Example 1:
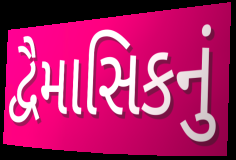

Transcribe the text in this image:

દ્વૈમાસિકનું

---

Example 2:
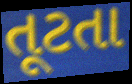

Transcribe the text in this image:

તૂટતા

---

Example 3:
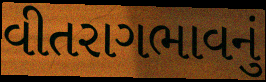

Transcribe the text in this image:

વીતરાગભાવનું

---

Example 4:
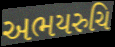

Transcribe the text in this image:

અભયરુચિ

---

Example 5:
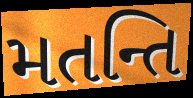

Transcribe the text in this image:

મતન્તિ